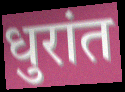
धुरांत